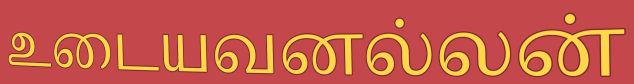
உடையவனல்லன்